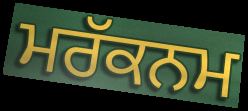
ਮਰੱਕਨਮ